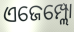
ଏଜେମ୍ପ୍ଲୋ